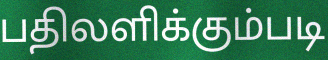
பதிலளிக்கும்படி